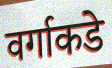
वर्गाकडे